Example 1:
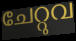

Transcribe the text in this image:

ചേറ്റുവ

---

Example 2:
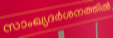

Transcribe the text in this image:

സാംഖ്യദർശനത്തിൽ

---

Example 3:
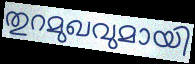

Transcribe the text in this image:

തുറമുഖവുമായി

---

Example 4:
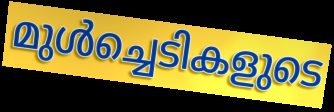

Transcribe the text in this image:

മുൾച്ചെടികളുടെ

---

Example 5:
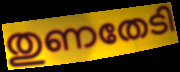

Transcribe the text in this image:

തുണതേടി